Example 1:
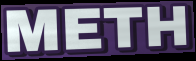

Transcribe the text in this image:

METH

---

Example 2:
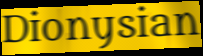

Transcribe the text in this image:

Dionysian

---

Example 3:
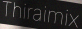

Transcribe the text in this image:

Thiraimix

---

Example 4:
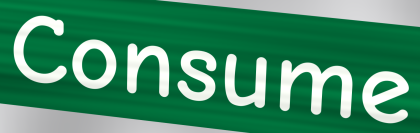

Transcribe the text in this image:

Consume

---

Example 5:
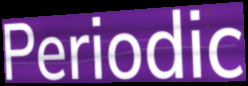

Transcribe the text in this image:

Periodic